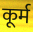
कूर्म